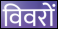
विवरों